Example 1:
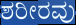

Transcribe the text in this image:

ಶರೀರವು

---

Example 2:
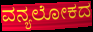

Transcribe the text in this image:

ವನ್ಯಲೋಕದ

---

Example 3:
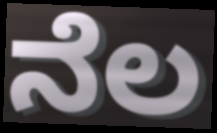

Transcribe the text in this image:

ನೆಲ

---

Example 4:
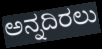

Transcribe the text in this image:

ಅನ್ನದಿರಲು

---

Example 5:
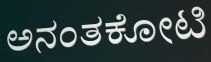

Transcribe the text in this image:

ಅನಂತಕೋಟಿ